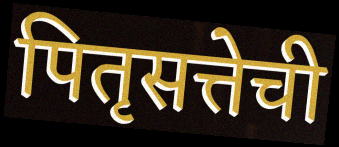
पितृसत्तेची